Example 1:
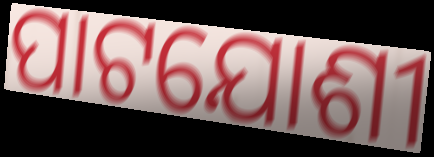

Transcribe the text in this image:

ପାଟଯୋଶୀ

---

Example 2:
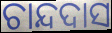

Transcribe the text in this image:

ଚାନ୍ଦଦାସ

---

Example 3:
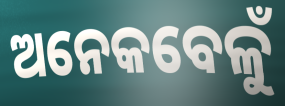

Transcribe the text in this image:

ଅନେକବେଳୁଁ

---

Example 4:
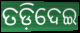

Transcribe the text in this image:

ତଡ଼ିଦେଇ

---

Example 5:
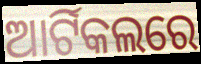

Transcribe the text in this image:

ଆର୍ଟିକଲରେ